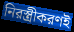
নিরস্ত্রীকরণই